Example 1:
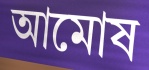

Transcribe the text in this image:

আমোষ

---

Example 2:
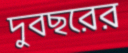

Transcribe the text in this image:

দুবছরের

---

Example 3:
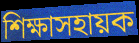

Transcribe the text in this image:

শিক্ষাসহায়ক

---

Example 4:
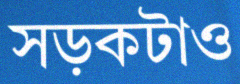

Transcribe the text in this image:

সড়কটাও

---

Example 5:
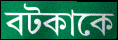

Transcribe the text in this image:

বটকাকে